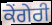
ਕੇਂਗੇਰੀ